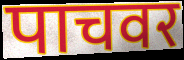
पाचवर